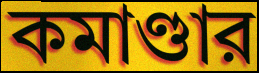
কমাণ্ডার